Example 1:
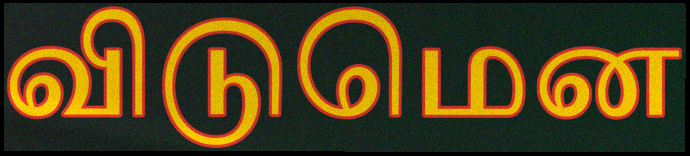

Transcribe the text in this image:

விடுமென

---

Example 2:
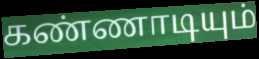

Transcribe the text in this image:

கண்ணாடியும்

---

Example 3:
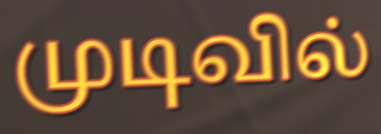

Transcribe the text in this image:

முடிவில்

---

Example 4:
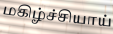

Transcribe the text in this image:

மகிழ்ச்சியாய்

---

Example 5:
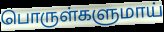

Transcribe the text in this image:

பொருள்களுமாய்